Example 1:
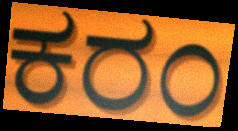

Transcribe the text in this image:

ಕರಂ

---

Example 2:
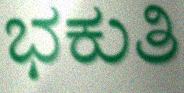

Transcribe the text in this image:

ಭಕುತಿ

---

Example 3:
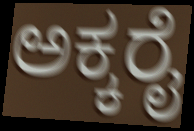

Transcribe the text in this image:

ಅಕ್ಕರೈ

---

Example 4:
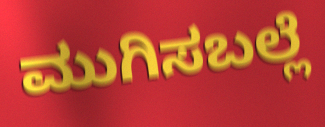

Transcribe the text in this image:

ಮುಗಿಸಬಲ್ಲೆ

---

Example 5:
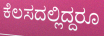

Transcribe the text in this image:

ಕೆಲಸದಲ್ಲಿದ್ದರೂ